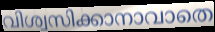
വിശ്വസിക്കാനാവാതെ